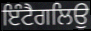
ਇੰਟੈਗਲਿਉ